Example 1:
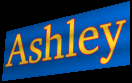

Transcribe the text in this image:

Ashley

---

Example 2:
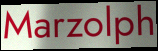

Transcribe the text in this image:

Marzolph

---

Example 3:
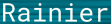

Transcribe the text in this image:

Rainier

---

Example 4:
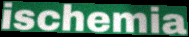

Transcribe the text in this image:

ischemia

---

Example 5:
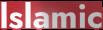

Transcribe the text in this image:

lslamic